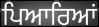
ਪਿਆਰਿਆਂ